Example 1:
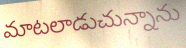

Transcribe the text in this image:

మాటలాడుచున్నాను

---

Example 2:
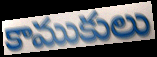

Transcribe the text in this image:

కాముకులు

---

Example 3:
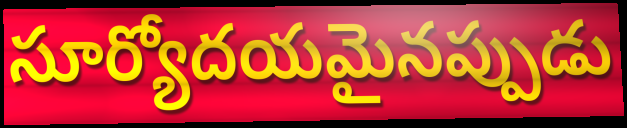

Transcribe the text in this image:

సూర్యోదయమైనప్పుడు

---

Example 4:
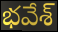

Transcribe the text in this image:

భవేశ్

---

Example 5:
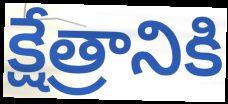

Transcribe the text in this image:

క్షేత్రానికి